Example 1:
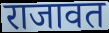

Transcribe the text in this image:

राजावत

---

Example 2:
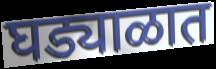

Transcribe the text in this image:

घड्याळात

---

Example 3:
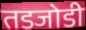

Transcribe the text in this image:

तडजोडी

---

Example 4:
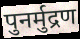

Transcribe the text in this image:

पुनर्मुद्रण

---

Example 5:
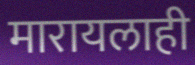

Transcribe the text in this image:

मारायलाही